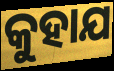
କୁହାଯ